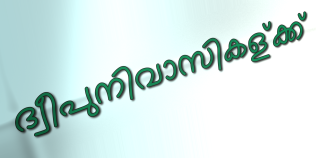
ദ്വീപുനിവാസികള്ക്ക്